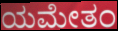
ಯಮೇತಂ